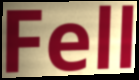
Fell